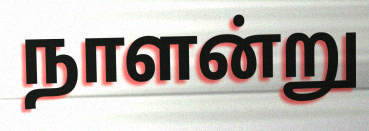
நாளன்று